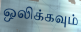
ஒலிக்கவும்